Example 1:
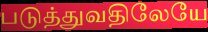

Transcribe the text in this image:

படுத்துவதிலேயே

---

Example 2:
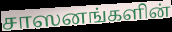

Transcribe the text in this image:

சாஸனங்களின்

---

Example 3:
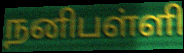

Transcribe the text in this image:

நனிபள்ளி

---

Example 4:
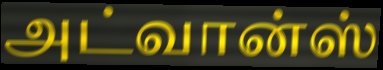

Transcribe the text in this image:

அட்வான்ஸ்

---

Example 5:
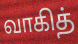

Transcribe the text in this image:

வாகித்